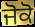
ਜੋਕੋ